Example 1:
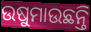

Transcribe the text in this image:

ଉଷୁମାଉଛନ୍ତି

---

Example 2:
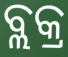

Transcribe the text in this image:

ବ୍ଲକ୍ର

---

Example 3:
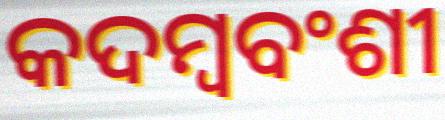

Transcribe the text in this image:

କଦମ୍ବବଂଶୀ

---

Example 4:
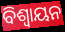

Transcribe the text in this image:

ବିଶ୍ୱାୟନ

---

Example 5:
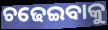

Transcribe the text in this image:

ଚଢେଇବାକୁ